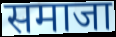
समाजा